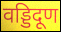
वड्डिदूण